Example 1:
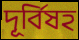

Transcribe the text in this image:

দূর্বিষহ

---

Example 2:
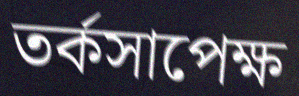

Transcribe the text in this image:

তর্কসাপেক্ষ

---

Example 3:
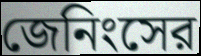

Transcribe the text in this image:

জেনিংসের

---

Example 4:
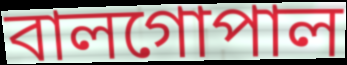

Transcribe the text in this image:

বালগোপাল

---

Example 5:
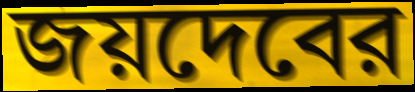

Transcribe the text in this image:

জয়দেবের